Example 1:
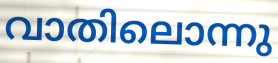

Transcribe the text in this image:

വാതിലൊന്നു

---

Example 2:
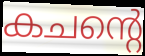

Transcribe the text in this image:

കചന്റെ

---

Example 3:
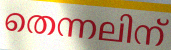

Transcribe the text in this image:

തെന്നലിന്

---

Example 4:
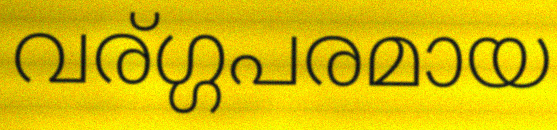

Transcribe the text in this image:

വര്ഗ്ഗപരമായ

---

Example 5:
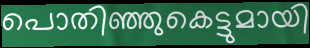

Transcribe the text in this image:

പൊതിഞ്ഞുകെട്ടുമായി